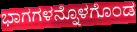
ಭಾಗಗಳನ್ನೊಳಗೊಂಡ